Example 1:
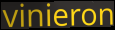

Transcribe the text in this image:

vinieron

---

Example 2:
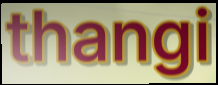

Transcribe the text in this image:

thangi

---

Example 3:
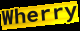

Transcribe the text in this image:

Wherry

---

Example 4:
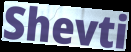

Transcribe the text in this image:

Shevti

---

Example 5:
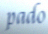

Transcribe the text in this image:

pado